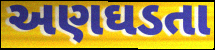
અણઘડતા